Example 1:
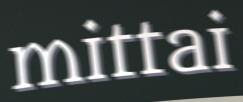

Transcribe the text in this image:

mittai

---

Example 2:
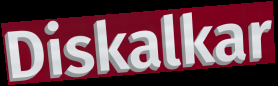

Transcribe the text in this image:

Diskalkar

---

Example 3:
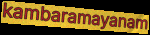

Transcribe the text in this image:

kambaramayanam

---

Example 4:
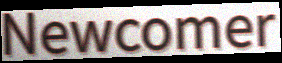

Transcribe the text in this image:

Newcomer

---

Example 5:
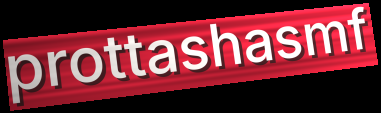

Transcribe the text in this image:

prottashasmf